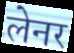
लेनर